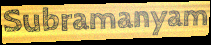
Subramanyam